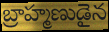
బ్రాహ్మణుడైన